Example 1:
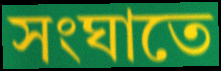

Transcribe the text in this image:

সংঘাতে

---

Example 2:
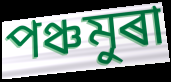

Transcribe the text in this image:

পঞ্চমুৰা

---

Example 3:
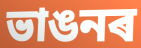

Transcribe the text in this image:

ভাঙনৰ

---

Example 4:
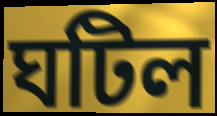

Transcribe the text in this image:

ঘটিল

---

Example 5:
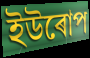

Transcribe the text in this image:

ইউৰোপ